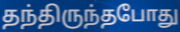
தந்திருந்தபோது